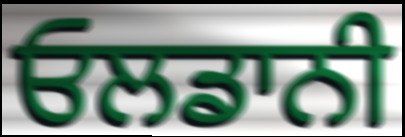
ਓਲਡਾਨੀ